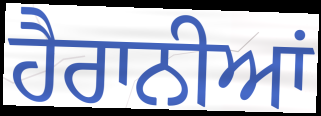
ਹੈਰਾਨੀਆਂ